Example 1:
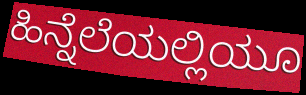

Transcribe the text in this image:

ಹಿನ್ನೆಲೆಯಲ್ಲಿಯೂ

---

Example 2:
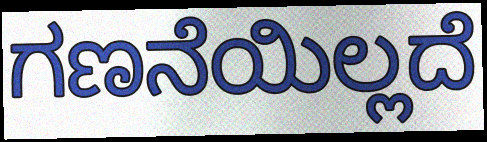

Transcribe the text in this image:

ಗಣನೆಯಿಲ್ಲದೆ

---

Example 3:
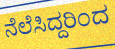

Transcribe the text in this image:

ನೆಲೆಸಿದ್ದರಿಂದ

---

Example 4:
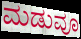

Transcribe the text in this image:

ಮಡುವೂ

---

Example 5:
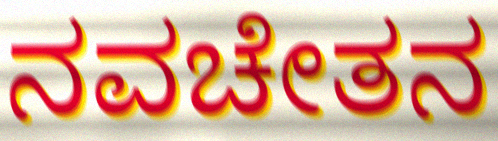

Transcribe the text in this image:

ನವಚೇತನ